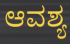
ಆವಶ್ಯ